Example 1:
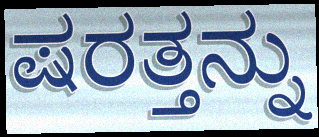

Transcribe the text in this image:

ಷರತ್ತನ್ನು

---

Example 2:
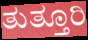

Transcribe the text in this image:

ತುತ್ತೂರಿ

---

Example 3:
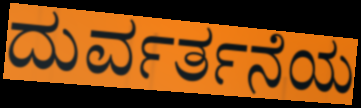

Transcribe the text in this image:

ದುರ್ವರ್ತನೆಯ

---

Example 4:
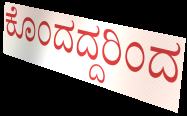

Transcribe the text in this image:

ಕೊಂದದ್ದರಿಂದ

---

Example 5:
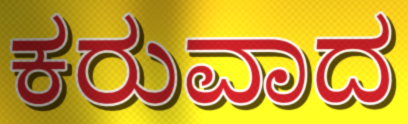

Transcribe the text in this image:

ಕರುವಾದ